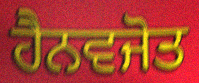
ਹੈਨਵਜੋਤ